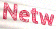
Netw